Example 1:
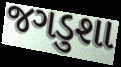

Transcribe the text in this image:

જગડુશા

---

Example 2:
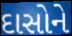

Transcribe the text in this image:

દાસોને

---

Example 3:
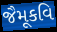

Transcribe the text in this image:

જૈમૂકવિ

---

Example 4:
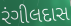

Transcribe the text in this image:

રંગીલદાસ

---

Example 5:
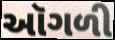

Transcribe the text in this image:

ઑગળી